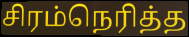
சிரம்நெரித்த